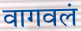
वागवलं